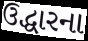
ઉદ્ધારના